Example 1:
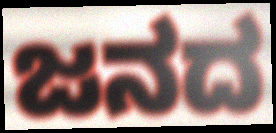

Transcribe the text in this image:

ಜನದ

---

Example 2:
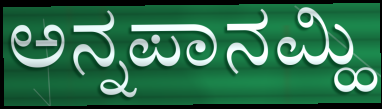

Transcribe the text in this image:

ಅನ್ನಪಾನಮ್ಹಿ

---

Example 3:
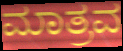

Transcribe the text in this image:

ಮಾತ್ರವ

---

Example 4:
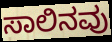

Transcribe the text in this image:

ಸಾಲಿನವು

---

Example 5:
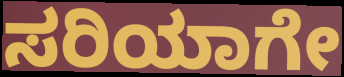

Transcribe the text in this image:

ಸರಿಯಾಗೇ